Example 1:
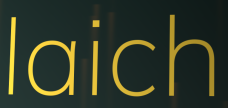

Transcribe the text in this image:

laich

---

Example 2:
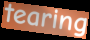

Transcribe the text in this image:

tearing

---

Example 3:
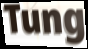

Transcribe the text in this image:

Tung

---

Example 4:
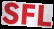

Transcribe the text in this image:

SFL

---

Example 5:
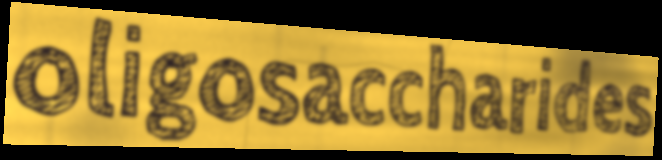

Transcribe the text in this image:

oligosaccharides